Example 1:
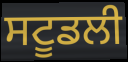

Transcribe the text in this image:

ਸਟੂਡਲੀ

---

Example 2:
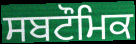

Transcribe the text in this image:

ਸਬਟੌਮਿਕ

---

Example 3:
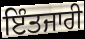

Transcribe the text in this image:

ਇੰਤਜਾਰੀ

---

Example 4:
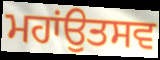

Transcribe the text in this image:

ਮਹਾਂਉਤਸਵ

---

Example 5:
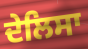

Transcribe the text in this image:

ਦੇਲਿਸਾ